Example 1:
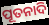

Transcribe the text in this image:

ପୂତନାଦି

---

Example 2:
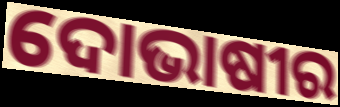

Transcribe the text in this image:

ଦୋଭାଷୀର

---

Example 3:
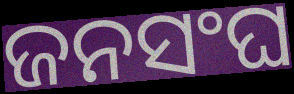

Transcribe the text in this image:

ଜନସଂଘ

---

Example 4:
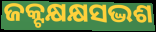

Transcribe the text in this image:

ଜକ୍ଟକ୍ଷକ୍ଷସଦ୍ଭଶ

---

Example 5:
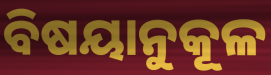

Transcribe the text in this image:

ବିଷୟାନୁକୂଳ